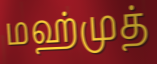
மஹ்முத்